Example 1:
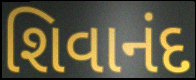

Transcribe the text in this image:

શિવાનંદ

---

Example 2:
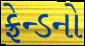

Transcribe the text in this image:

ફ્રેન્ડનો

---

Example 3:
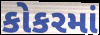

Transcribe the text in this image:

કોકરમાં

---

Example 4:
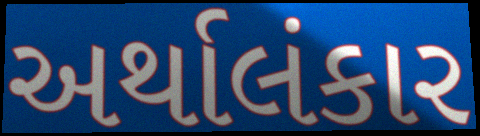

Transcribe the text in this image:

અર્થાલંકાર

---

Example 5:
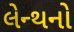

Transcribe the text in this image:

લેન્થનો